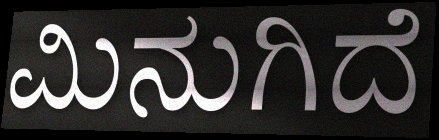
ಮಿನುಗಿದೆ